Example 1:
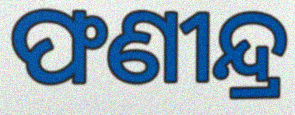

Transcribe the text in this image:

ଫଣୀନ୍ଦ୍ର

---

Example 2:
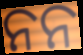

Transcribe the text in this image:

ନନ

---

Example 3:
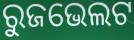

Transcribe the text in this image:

ରୁଜଭେଲଟ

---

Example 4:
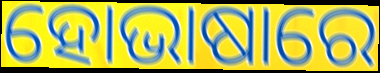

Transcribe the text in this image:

ହୋଭାଷାରେ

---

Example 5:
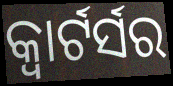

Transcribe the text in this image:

କ୍ବାର୍ଟର୍ସର